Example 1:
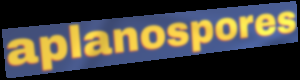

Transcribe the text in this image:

aplanospores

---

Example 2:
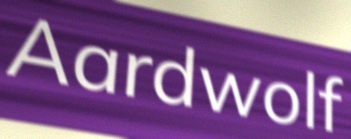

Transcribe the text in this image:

Aardwolf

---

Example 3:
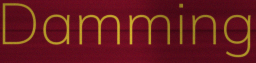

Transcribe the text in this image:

Damming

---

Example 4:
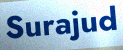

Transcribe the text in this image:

Surajud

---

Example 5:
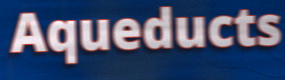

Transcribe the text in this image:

Aqueducts